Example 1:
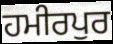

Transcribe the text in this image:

ਹਮੀਰਪੁਰ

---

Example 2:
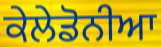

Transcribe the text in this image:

ਕੇਲੇਡੋਨੀਆ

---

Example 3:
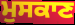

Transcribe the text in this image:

ਮੁਸਕਾਣ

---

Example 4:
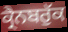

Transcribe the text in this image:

ਕ੍ਰੈਨਬਰੁੱਕ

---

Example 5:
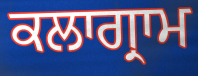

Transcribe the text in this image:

ਕਲਾਗ੍ਰਾਮ